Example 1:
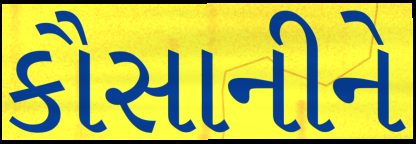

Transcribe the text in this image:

કૌસાનીને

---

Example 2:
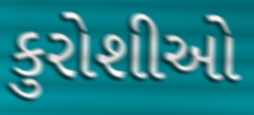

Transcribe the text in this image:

કુરોશીઓ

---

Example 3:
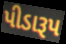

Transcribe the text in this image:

પીડારૂપ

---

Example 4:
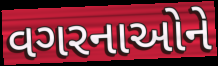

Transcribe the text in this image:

વગરનાઓને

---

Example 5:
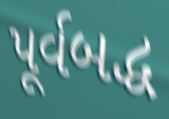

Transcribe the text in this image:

પૂર્વબદ્ધ